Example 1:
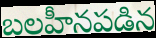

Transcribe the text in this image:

బలహీనపడిన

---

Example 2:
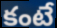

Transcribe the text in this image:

కంటే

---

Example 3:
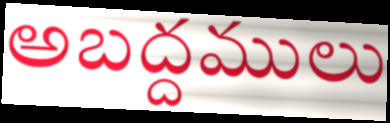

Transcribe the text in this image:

అబద్దములు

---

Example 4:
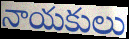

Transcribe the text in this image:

నాయకులు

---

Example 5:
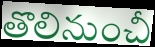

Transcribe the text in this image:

తొలినుంచీ